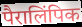
पैरालिंपिक